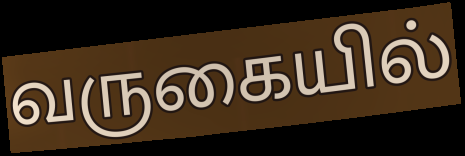
வருகையில்